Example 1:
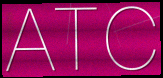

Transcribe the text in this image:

ATC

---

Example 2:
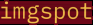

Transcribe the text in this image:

imgspot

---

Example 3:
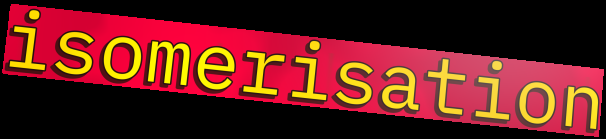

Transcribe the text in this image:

isomerisation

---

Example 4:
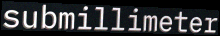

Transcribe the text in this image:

submillimeter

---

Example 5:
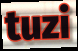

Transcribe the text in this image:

tuzi